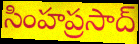
సింహప్రసాద్